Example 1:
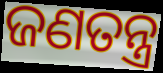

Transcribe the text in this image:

ଜଣତନ୍ତ୍ର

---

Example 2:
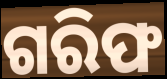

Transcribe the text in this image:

ଗରିଫ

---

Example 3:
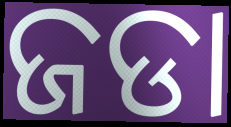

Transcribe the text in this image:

ଜଡା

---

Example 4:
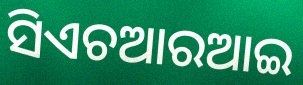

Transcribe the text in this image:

ସିଏଚଆରଆଇ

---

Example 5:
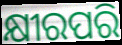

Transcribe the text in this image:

କ୍ଷୀରପରି